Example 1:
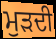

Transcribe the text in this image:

ਮੁੜਦੀ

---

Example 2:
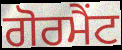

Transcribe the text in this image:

ਗੋਰਮੈਂਟ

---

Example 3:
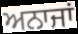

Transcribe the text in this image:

ਅਨਾਜਾਂ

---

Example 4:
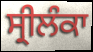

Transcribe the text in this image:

ਸ੍ਰੀਲੰਕਾ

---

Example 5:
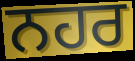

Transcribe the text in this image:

ਨਹਰ